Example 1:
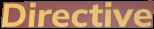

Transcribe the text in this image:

Directive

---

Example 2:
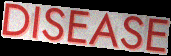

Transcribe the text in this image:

DISEASE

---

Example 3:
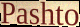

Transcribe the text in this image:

Pashto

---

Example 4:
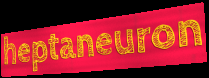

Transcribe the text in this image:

heptaneuron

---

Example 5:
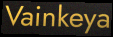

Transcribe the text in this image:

Vainkeya